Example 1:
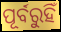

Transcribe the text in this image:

ପୂର୍ବରୁହିଁ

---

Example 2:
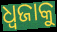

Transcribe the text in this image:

ଧ୍ୱଜାକୁ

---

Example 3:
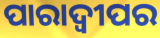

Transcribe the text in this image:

ପାରାଦ୍ବୀପର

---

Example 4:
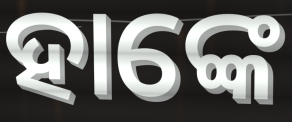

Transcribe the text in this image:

ହାଙ୍କେ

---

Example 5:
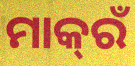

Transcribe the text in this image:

ମାକ୍‌ରଁ